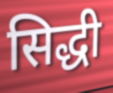
सिद्धी